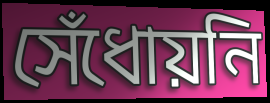
সেঁধোয়নি